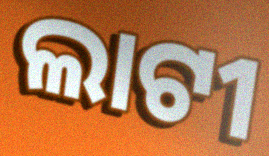
ଲାଟୀ